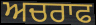
ਅਚਰਾਫ